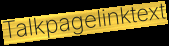
Talkpagelinktext